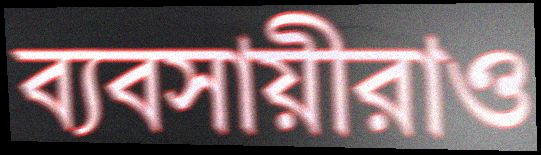
ব্যবসায়ীরাও